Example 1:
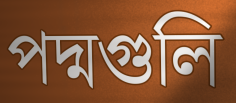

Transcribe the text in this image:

পদ্মগুলি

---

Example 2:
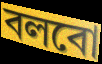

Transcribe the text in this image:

বলবো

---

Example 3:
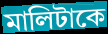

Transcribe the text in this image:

মালিটাকে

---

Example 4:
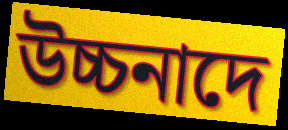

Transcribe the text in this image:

উচ্চনাদে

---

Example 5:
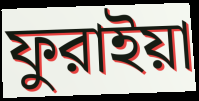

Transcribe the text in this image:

ফুরাইয়া